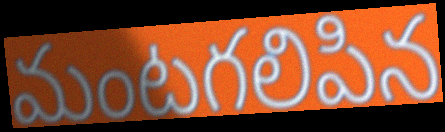
మంటగలిపిన